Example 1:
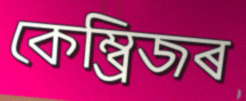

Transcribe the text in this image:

কেম্ব্ৰিজৰ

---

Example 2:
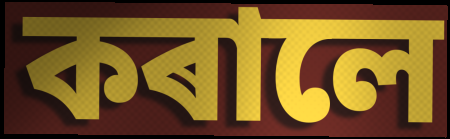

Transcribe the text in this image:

কৰালে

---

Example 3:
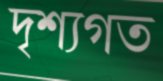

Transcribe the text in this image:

দৃশ্যগত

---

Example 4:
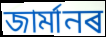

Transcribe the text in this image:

জাৰ্মানৰ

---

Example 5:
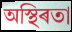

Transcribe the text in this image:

অস্থিৰতা